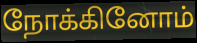
நோக்கினோம்